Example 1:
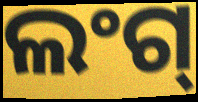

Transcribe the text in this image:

ଲଂଗ୍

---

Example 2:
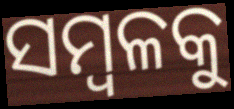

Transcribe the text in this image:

ସମ୍ବଳକୁ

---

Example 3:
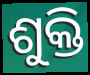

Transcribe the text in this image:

ଶୁକ୍ତି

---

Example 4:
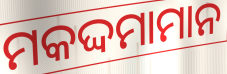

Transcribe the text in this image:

ମକଦ୍ଦମାମାନ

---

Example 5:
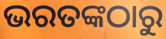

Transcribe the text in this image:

ଭରତଙ୍କଠାରୁ